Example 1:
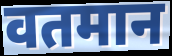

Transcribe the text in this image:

वतमान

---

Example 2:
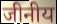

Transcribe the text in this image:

जीनीय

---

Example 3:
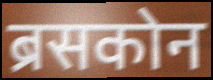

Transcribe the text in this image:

ब्रसकोन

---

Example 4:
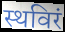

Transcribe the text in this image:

स्थविरं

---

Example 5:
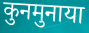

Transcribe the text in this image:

कुनमुनाया